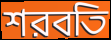
শরবতি